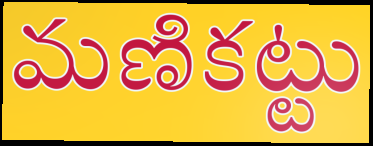
మణికట్టు